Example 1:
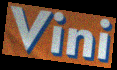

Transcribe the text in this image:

Vini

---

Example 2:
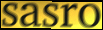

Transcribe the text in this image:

sasro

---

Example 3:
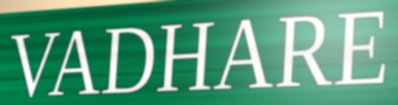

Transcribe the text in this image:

VADHARE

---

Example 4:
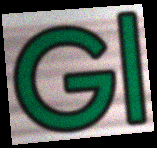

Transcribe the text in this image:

Gl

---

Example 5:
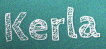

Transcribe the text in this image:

Kerla